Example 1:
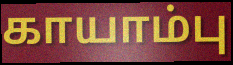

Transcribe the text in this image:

காயாம்பு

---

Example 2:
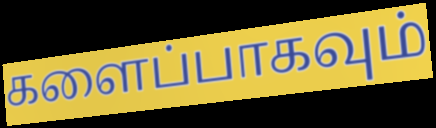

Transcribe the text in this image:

களைப்பாகவும்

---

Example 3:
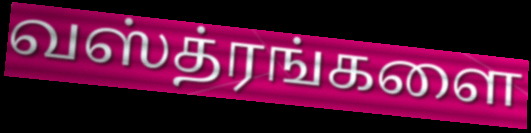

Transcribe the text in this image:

வஸ்த்ரங்களை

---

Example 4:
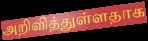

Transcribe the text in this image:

அறிவித்துள்ளதாக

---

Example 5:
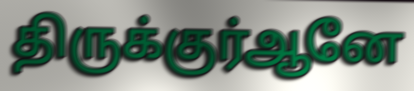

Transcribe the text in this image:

திருக்குர்ஆனே